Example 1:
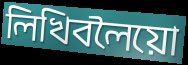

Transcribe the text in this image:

লিখিবলৈয়ো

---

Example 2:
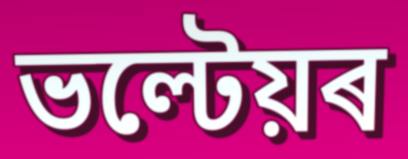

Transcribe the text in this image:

ভল্টেয়ৰ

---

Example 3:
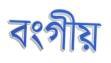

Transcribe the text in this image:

বংগীয়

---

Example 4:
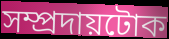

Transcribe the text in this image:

সম্প্ৰদায়টোক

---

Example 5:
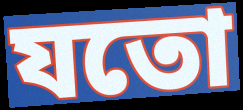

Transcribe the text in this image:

যতো